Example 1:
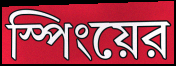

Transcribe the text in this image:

স্পিংয়ের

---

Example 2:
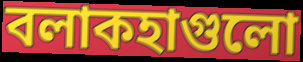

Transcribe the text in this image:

বলাকহাগুলো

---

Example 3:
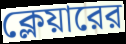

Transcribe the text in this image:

ক্লেয়ারের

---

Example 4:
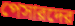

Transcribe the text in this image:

পেসারদের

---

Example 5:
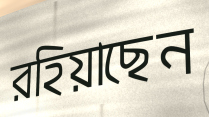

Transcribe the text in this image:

রহিয়াছেন